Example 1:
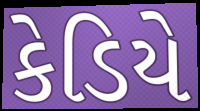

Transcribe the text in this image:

કેડિયે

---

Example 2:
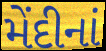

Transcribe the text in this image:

મેંદીનાં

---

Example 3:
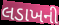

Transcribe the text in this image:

લડાખની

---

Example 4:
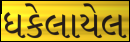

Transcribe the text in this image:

ધકેલાયેલ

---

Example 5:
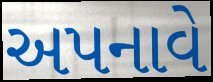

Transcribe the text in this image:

અપનાવે